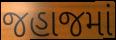
જહાજમાં